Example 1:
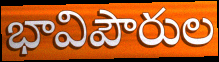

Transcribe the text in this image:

భావిపౌరుల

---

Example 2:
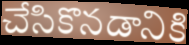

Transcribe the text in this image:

చేసికొనడానికి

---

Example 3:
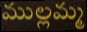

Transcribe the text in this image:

ముల్లమ్మ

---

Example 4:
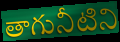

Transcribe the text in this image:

తాగునీటిని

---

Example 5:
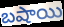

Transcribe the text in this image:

బషాయి